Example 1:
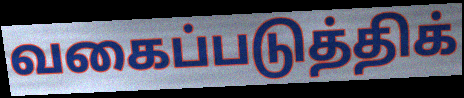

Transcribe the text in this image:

வகைப்படுத்திக்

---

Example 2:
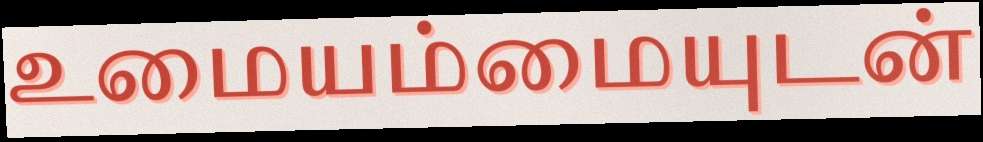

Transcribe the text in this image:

உமையம்மையுடன்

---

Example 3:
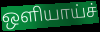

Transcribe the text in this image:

ஒளியாய்ச்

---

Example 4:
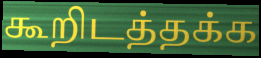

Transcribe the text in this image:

கூறிடத்தக்க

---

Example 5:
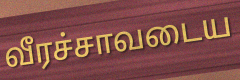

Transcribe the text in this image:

வீரச்சாவடைய